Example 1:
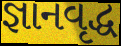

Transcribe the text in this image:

જ્ઞાનવૃદ્ધ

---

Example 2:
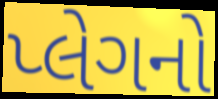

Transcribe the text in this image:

પ્લેગનો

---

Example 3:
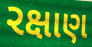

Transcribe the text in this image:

રક્ષાણ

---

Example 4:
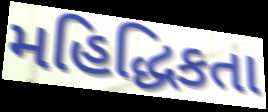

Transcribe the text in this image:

મહિદ્ધિકતા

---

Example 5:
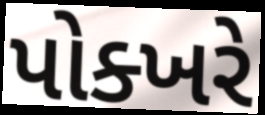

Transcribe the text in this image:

પોક્ખરે